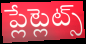
ప్లేట్లెట్స్